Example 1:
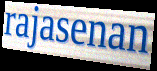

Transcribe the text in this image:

rajasenan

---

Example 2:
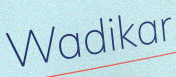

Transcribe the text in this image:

Wadikar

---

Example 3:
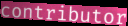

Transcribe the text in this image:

contributor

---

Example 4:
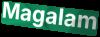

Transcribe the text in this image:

Magalam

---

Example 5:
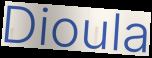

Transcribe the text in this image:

Dioula